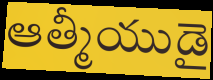
ఆత్మీయుడై